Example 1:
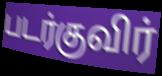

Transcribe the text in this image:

படர்குவிர்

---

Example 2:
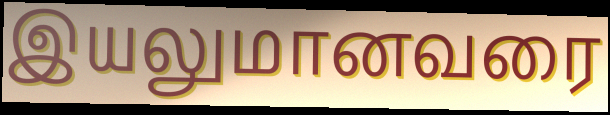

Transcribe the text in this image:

இயலுமானவரை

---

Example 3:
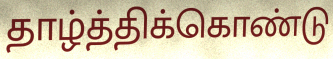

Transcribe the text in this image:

தாழ்த்திக்கொண்டு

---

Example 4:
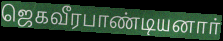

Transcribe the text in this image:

ஜெகவீரபாண்டியனார்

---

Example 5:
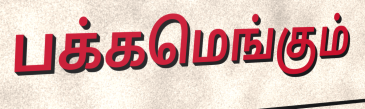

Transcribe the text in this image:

பக்கமெங்கும்